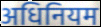
अधिनियम